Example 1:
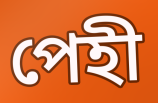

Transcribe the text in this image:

পেহী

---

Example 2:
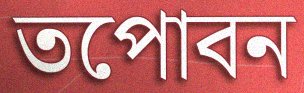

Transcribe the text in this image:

তপোবন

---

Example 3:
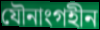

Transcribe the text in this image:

যৌনাংগহীন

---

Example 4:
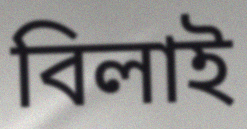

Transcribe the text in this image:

বিলাই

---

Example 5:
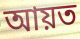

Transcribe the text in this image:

আয়ত